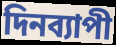
দিনব্যাপী